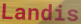
Landis